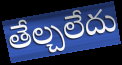
తేల్చలేదు